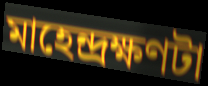
মাহেন্দ্রক্ষণটা